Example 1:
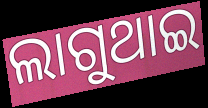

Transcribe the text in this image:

ଲାଗୁଥାଇ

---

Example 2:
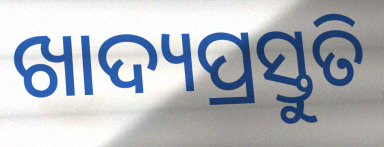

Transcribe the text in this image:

ଖାଦ୍ୟପ୍ରସ୍ତୁତି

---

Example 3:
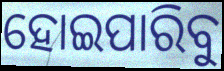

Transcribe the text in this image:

ହୋଇପାରିବୁ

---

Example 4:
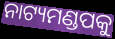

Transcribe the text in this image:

ନାଟ୍ୟମଣ୍ଡପକୁ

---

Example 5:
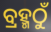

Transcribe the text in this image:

ବ୍ରହ୍ମଠୁଁ